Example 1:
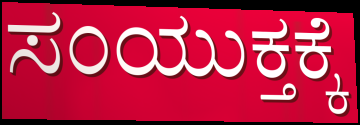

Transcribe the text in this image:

ಸಂಯುಕ್ತಕ್ಕೆ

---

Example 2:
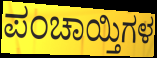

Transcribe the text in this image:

ಪಂಚಾಯ್ತಿಗಳ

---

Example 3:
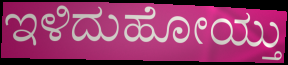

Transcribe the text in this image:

ಇಳಿದುಹೋಯ್ತು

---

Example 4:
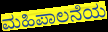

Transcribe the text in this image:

ಮಹಿಪಾಲನೆಯ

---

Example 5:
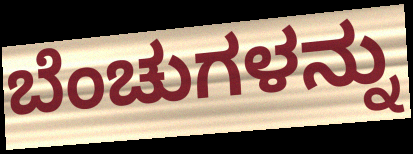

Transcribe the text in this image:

ಬೆಂಚುಗಳನ್ನು